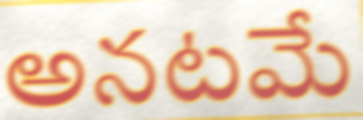
అనటమే